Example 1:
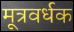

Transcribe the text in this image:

मूत्रवर्धक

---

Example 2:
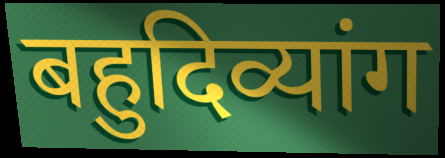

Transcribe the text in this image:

बहुदिव्यांग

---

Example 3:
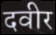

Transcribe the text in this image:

दवीर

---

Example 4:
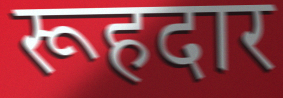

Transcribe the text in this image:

रूहदार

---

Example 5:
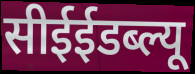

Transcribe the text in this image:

सीईईडब्ल्यू